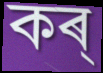
কৰ্